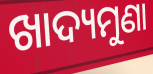
ଖାଦ୍ୟମୁଣା